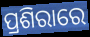
ପ୍ରଶିରାରେ